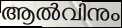
ആൽവിനും